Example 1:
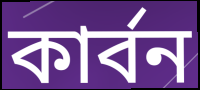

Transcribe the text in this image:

কার্বন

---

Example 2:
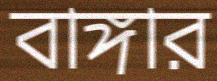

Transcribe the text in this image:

বাঙ্গার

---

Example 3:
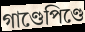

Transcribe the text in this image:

গাণ্ডেপিণ্ডে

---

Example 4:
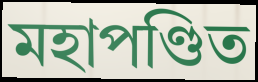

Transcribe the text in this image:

মহাপণ্ডিত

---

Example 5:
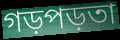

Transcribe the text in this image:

গড়পড়তা